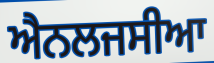
ਐਨਲਜਸੀਆ